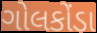
ગોલકોંડા